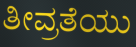
ತೀವ್ರತೆಯು